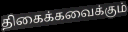
திகைக்கவைக்கும்